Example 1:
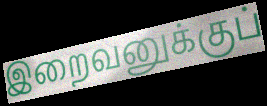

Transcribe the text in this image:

இறைவனுக்குப்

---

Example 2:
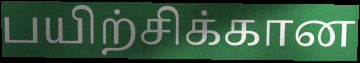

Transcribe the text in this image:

பயிற்சிக்கான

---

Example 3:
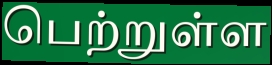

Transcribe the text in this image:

பெற்றுள்ள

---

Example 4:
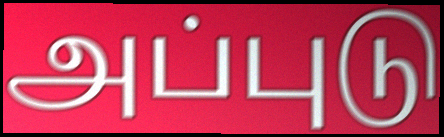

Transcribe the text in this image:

அப்புடு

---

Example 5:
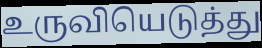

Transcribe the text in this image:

உருவியெடுத்து